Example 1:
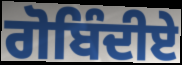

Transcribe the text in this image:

ਗੋਬਿੰਦੀਏ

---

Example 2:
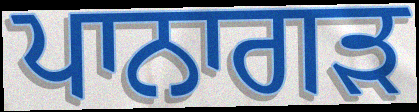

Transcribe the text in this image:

ਪਾਨਾਗੜ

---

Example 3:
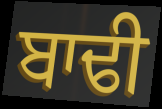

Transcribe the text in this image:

ਬਾਢੀ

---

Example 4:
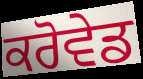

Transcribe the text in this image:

ਕਰੋਵੇਡ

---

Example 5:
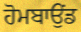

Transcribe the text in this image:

ਹੋਮਬਾਉਂਡ